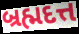
બ્રહ્મદત્ત